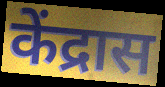
केंद्रास